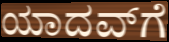
ಯಾದವ್‌ಗೆ